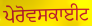
ਪੇਰੋਵਸਕਾਈਟ